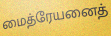
மைத்ரேயனைத்